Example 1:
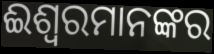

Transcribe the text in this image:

ଈଶ୍ୱରମାନଙ୍କର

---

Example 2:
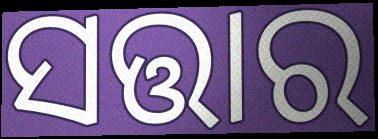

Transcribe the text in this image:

ସତ୍ତାର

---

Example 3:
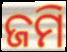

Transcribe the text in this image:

ଜମି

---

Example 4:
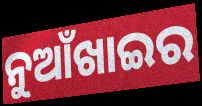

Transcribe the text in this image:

ନୁଆଁଖାଇର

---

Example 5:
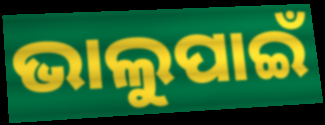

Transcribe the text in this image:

ଭାଲୁପାଇଁ